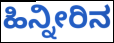
ಹಿನ್ನೀರಿನ